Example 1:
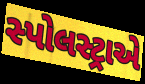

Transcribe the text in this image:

સ્પોલસ્ટ્રાએ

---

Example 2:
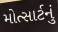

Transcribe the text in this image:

મોત્સાર્ટનું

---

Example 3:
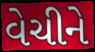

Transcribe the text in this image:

વેચીને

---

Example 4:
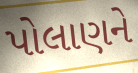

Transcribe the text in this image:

પોલાણને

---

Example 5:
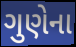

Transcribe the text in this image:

ગુણેના